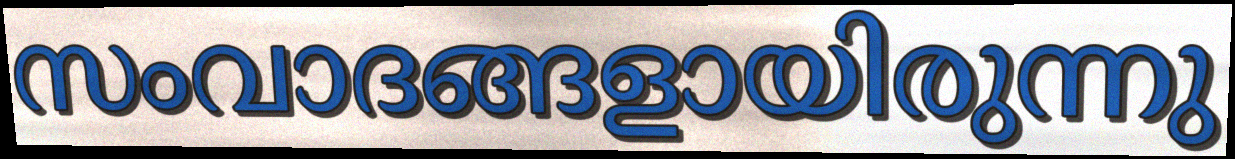
സംവാദങ്ങളായിരുന്നു